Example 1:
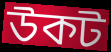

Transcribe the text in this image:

উকট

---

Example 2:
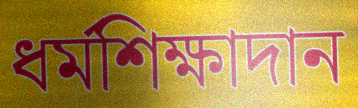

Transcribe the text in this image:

ধর্মশিক্ষাদান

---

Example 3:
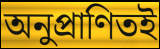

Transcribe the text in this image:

অনুপ্রাণিতই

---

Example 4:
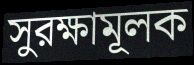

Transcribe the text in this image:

সুরক্ষামূলক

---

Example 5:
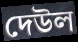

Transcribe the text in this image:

দেউল